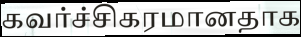
கவர்ச்சிகரமானதாக